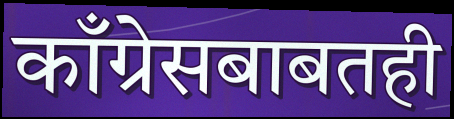
काँग्रेसबाबतही